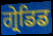
ਗ੍ਰੇਡਿਡ